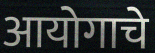
आयोगाचे